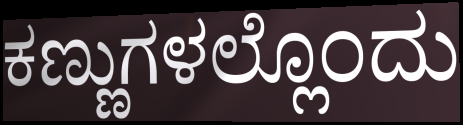
ಕಣ್ಣುಗಳಲ್ಲೊಂದು